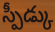
స్పీడ్కు